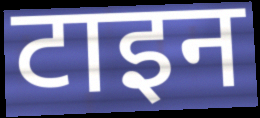
टाइन